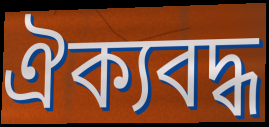
ঐক্যবদ্ধ